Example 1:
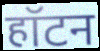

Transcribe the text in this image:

हॉटन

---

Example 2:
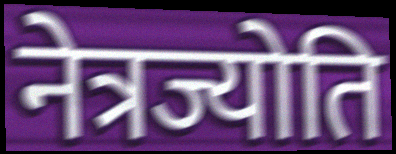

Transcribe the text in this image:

नेत्रज्योति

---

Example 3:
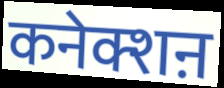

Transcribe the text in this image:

कनेक्शऩ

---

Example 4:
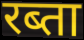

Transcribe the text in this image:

रब्ता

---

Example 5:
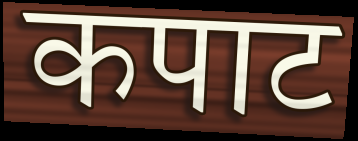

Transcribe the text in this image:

कपाट